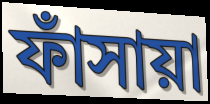
ফাঁসায়া